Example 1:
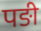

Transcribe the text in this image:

पङी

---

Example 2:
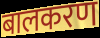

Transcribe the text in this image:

बालकरण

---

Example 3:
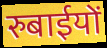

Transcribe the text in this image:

रुबाईयों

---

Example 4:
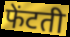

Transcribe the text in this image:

फेंटती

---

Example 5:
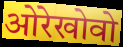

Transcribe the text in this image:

ओरेखोवो